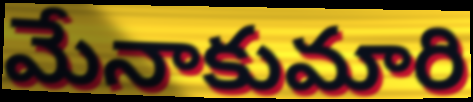
మేనాకుమారి